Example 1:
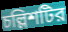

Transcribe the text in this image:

চল্লিশটির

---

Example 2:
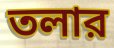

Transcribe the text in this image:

তলার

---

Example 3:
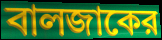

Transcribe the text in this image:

বালজাকের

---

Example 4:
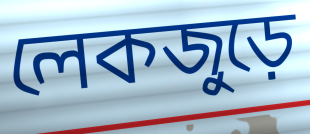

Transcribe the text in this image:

লেকজুড়ে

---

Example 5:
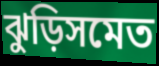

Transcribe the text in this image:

ঝুড়িসমেত